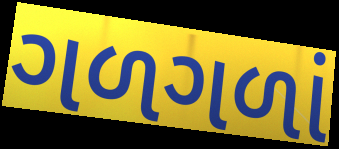
ગળગળાં